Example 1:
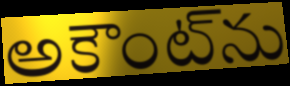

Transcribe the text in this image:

అకౌంట్‌ను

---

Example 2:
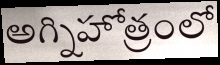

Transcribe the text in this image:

అగ్నిహోత్రంలో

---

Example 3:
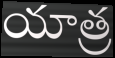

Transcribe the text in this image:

యాత్ర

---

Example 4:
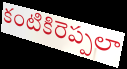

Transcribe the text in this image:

కంటికిరెప్పలా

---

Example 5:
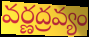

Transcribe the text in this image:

వర్ణద్రవ్యం